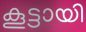
കൂട്ടായി